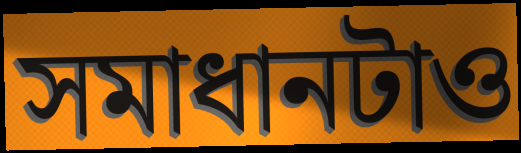
সমাধানটাও